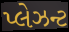
પ્લેઝન્ટ